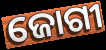
ଜୋଗୀ